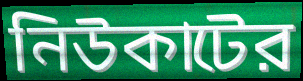
নিউকাটের